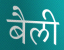
बैली